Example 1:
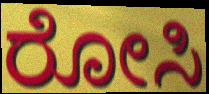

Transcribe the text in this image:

ರೋಸಿ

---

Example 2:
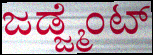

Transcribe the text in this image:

ಜಡ್ಜ್ಮೆಂಟ್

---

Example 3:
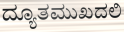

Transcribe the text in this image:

ದ್ಯೂತಮುಖದಲಿ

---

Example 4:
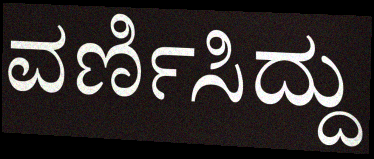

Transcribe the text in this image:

ವರ್ಣಿಸಿದ್ದು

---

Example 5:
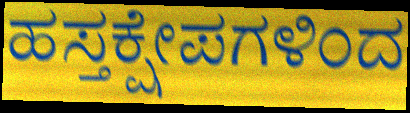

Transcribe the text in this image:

ಹಸ್ತಕ್ಷೇಪಗಳಿಂದ